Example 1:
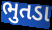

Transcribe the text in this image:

ભુતડા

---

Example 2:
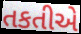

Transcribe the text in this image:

તકતીએ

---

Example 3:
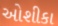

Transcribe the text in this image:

ઓશીકા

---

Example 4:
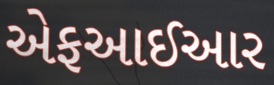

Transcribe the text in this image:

એફઆઈઆર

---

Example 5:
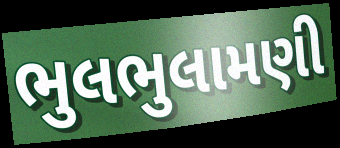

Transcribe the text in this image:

ભુલભુલામણી